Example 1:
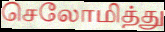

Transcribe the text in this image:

செலோமித்து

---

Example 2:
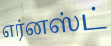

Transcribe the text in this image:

எர்னஸ்ட்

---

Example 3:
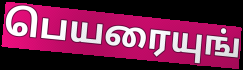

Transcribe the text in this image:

பெயரையுங்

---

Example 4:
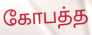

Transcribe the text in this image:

கோபத்த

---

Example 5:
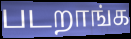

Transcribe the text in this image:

படறாங்க